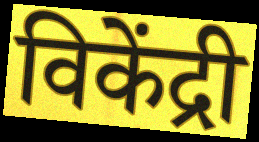
विकेंद्री